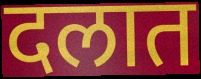
दलात